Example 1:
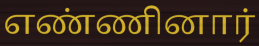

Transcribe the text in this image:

எண்ணினார்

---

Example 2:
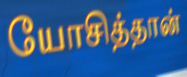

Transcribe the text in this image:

யோசித்தான்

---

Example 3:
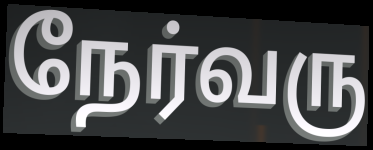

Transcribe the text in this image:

நேர்வரு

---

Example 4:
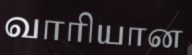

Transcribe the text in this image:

வாரியான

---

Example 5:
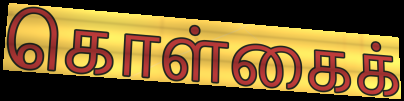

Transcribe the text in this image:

கொள்கைக்